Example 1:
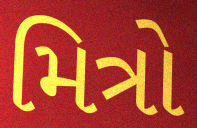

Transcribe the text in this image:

મિત્રો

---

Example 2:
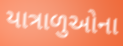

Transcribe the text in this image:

યાત્રાળુઓના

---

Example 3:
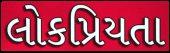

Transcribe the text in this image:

લોકપ્રિયતા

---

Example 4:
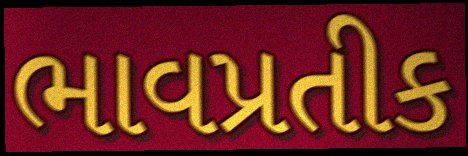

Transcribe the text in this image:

ભાવપ્રતીક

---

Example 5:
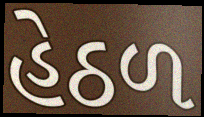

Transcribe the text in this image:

હેઠળ